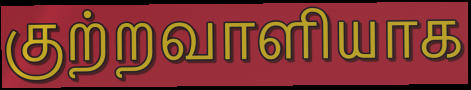
குற்றவாளியாக